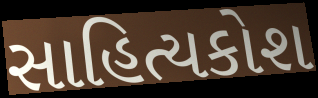
સાહિત્યકોશ